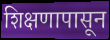
शिक्षणापासून